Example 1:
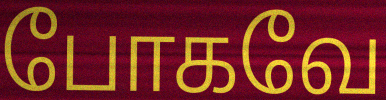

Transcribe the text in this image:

போகவே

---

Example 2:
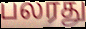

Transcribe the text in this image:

பலரது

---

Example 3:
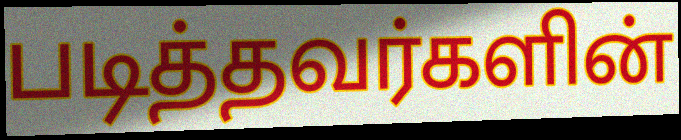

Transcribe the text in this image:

படித்தவர்களின்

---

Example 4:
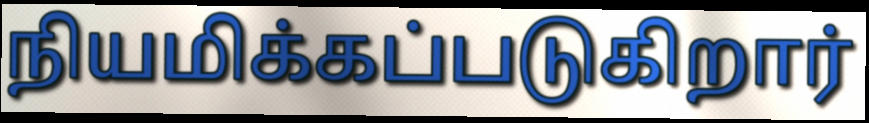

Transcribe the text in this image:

நியமிக்கப்படுகிறார்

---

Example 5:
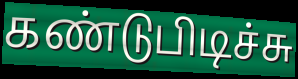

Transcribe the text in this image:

கண்டுபிடிச்சு